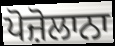
ਪੋਜ਼ੋਲਾਨਾ